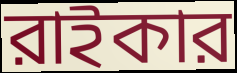
রাইকার